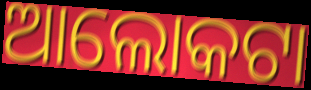
ଆଲୋକଟା